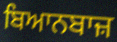
ਬਿਆਨਬਾਜ਼